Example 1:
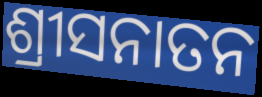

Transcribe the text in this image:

ଶ୍ରୀସନାତନ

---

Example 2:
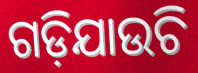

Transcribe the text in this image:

ଗଡ଼ିଯାଉଚି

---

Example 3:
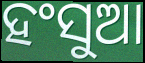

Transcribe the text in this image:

ହଂସୁଆ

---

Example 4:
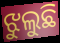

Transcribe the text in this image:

ଝୁଲୁଛି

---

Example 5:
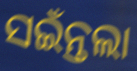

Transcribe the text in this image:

ସଇଁନ୍ତଲା